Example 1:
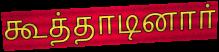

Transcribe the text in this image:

கூத்தாடினார்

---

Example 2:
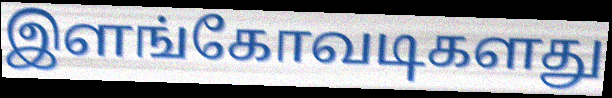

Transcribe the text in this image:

இளங்கோவடிகளது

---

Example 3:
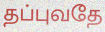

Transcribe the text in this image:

தப்புவதே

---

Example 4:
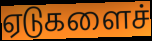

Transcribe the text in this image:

ஏடுகளைச்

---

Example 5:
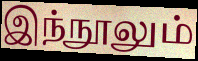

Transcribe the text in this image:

இந்நூலும்